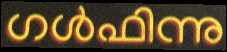
ഗൾഫിന്നു